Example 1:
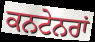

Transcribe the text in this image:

ਕਨਟੇਨਰਾਂ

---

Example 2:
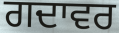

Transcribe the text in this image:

ਗਦਾਵਰ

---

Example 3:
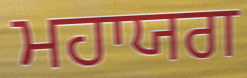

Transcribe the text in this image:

ਮਹਾਯਗ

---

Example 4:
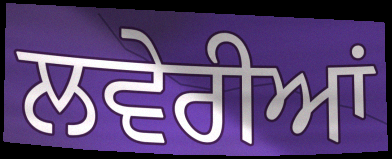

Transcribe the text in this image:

ਲਵੇਰੀਆਂ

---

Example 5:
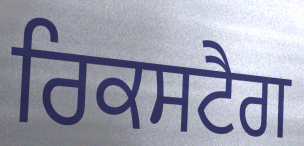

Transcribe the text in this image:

ਰਿਕਸਟੈਗ